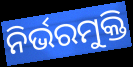
ନିର୍ଭରମୁକ୍ତି